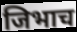
जिभाच